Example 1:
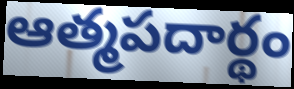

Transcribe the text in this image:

ఆత్మపదార్థం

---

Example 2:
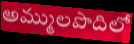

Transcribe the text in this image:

అమ్ములపొదిలో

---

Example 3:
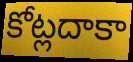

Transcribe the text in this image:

కోట్లదాకా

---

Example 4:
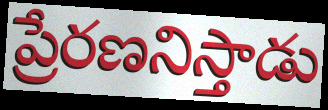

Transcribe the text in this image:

ప్రేరణనిస్తాడు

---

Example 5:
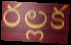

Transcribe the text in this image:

రల్లక